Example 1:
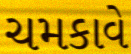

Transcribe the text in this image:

ચમકાવે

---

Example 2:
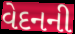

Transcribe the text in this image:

વેદનની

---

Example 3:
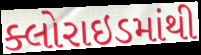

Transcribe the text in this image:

ક્લોરાઇડમાંથી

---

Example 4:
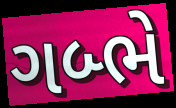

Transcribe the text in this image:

ગબ્ભે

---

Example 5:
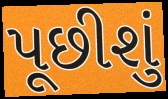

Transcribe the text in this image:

પૂછીશું